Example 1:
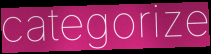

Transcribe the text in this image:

categorize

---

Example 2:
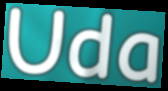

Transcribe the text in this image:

Uda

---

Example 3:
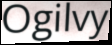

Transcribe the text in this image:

Ogilvy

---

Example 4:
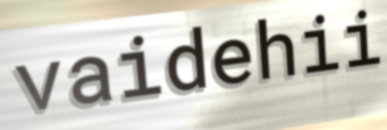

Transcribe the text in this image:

vaidehii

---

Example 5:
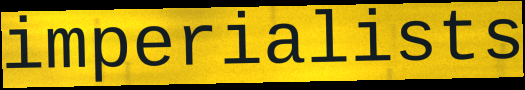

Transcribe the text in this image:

imperialists